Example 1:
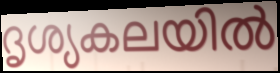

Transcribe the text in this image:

ദൃശ്യകലയിൽ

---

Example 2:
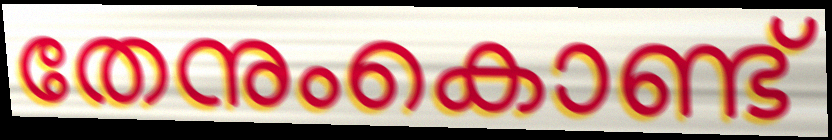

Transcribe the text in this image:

തേനുംകൊണ്ട്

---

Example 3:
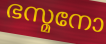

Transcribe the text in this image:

ഭസ്മനോ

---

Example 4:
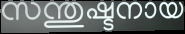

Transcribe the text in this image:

സന്തുഷ്ടനായ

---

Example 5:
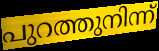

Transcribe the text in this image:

പുറത്തുനിന്ന്